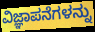
ವಿಜ್ಞಾಪನೆಗಳನ್ನು